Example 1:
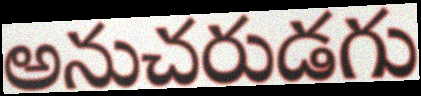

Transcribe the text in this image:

అనుచరుడగు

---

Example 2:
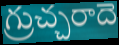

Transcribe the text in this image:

గ్రుచ్చరాదె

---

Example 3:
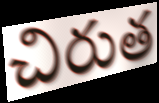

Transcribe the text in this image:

చిరుత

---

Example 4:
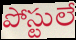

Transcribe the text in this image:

పోస్టులే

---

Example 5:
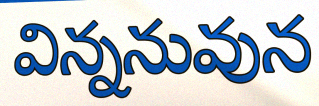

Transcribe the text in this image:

విన్ననువున